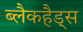
ब्लैकहैड्स